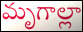
మృగాల్లా